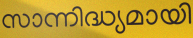
സാന്നിദ്ധ്യമായി